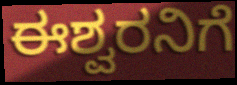
ಈಶ್ವರನಿಗೆ